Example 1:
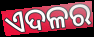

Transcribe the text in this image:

ଏଦଳର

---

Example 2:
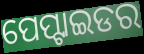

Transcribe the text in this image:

ପେପ୍ଟାଇଡର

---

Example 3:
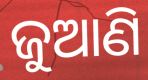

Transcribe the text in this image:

ଜୁଆଣି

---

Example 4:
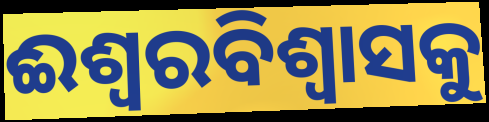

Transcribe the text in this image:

ଈଶ୍ୱରବିଶ୍ୱାସକୁ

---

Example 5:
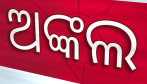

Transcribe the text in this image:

ଅଙ୍କଲ